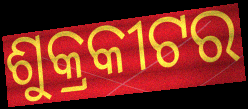
ଶୁକ୍ରକୀଟର